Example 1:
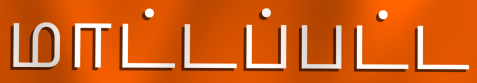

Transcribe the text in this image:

மாட்டப்பட்ட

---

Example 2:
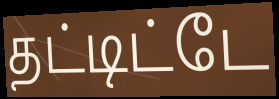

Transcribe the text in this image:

தட்டிட்டே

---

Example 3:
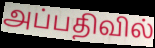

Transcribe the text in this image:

அப்பதிவில்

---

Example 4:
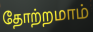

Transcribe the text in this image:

தோற்றமாம்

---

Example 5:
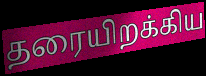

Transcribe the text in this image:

தரையிறக்கிய